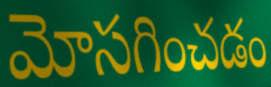
మోసగించడం